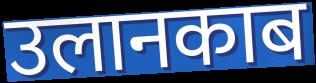
उलानकाब